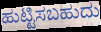
ಹುಟ್ಟಿಸಬಹುದು